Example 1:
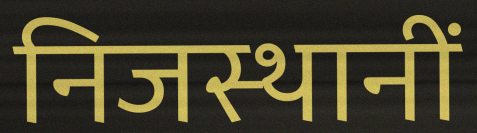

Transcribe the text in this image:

निजस्थानीं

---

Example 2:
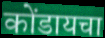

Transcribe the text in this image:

कोंडायचा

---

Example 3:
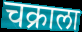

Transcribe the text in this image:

चक्राला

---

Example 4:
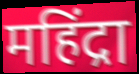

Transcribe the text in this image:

महिंद्रा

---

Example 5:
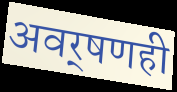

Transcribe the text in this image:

अवर्षणही